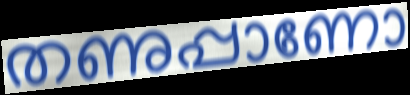
തണുപ്പാണോ